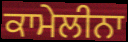
ਕਾਮੇਲੀਨਾ